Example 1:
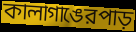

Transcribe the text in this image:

কালাগাঙেরপাড়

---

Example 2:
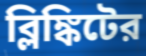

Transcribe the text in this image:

ব্লিঙ্কিটের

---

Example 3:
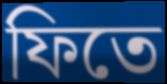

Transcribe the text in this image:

ফিতে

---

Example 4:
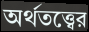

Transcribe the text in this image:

অর্থতত্ত্বের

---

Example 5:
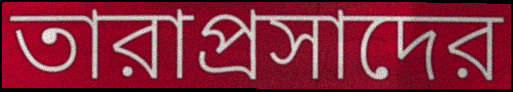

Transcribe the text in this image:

তারাপ্রসাদের